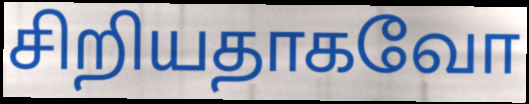
சிறியதாகவோ